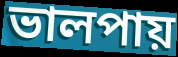
ভালপায়